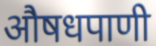
औषधपाणी